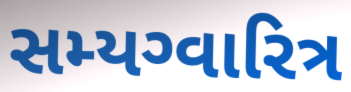
સમ્યગ્વારિત્ર